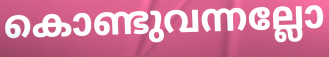
കൊണ്ടുവന്നല്ലോ